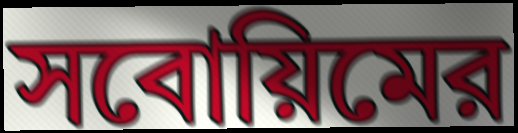
সবোয়িমের